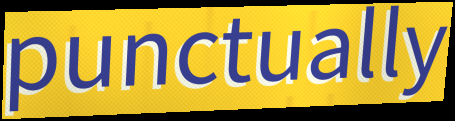
punctually